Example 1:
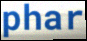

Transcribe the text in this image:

phar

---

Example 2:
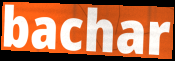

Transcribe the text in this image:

bachar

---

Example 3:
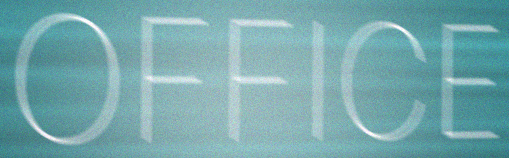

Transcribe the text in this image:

OFFICE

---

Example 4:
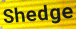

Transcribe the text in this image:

Shedge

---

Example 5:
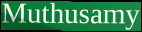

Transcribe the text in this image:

Muthusamy